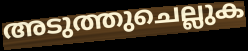
അടുത്തുചെല്ലുക